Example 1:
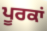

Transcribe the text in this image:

ਪੂਰਕਾਂ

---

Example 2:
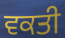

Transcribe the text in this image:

ਵਕਤੀ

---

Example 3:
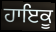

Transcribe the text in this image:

ਹਾਇਕੂ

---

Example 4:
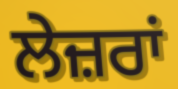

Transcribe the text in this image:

ਲੇਜ਼ਰਾਂ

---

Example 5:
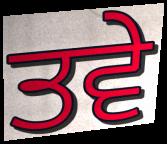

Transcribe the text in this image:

ਤਵੇ